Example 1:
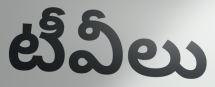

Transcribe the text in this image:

టీవీలు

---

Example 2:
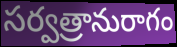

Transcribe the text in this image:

సర్వత్రానురాగం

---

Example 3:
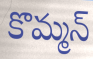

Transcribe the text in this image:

కొమ్మన్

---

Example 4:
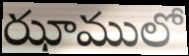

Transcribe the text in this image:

ఝాములో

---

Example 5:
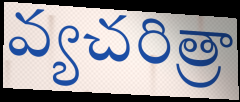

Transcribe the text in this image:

వ్యచరిత్రా